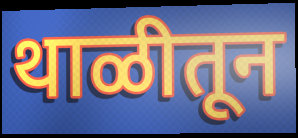
थाळीतून